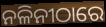
ନଳିନୀଠାରେ